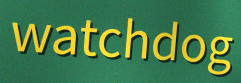
watchdog